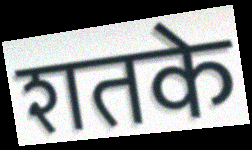
शतके